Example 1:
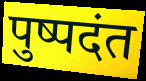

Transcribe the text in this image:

पुष्पदंत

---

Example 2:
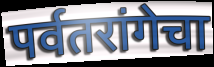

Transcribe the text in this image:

पर्वतरांगेचा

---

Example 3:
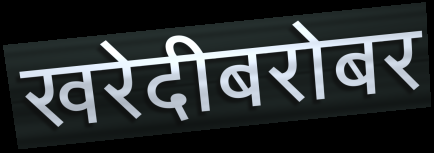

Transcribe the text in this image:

खरेदीबरोबर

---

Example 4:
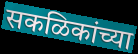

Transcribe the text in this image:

सकळिकांच्या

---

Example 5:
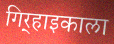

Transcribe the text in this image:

गिर्हाइकाला